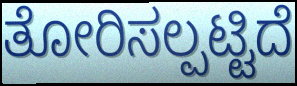
ತೋರಿಸಲ್ಪಟ್ಟಿದೆ